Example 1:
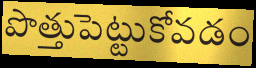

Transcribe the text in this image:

పొత్తుపెట్టుకోవడం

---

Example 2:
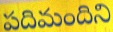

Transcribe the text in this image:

పదిమందిని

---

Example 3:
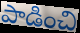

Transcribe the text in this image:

పాడించి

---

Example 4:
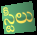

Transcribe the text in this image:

స్టీలు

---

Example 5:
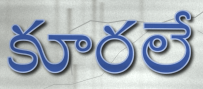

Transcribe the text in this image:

కూరలే